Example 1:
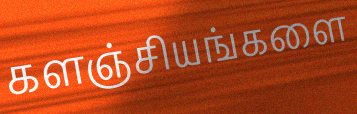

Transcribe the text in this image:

களஞ்சியங்களை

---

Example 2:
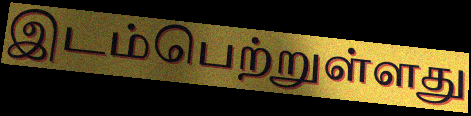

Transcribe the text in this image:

இடம்பெற்றுள்ளது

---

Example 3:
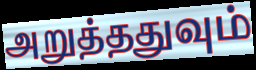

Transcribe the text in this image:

அறுத்ததுவும்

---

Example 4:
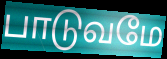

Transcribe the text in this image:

பாடுவமே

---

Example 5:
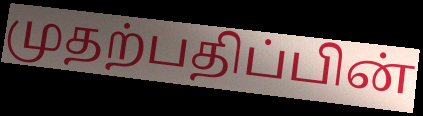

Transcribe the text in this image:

முதற்பதிப்பின்